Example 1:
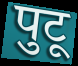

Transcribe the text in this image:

पुटू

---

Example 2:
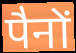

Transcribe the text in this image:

पैनों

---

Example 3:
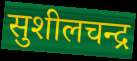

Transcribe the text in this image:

सुशीलचन्द्र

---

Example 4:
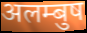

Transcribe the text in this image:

अलम्बुष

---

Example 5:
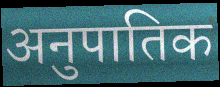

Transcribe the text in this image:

अनुपातिक